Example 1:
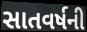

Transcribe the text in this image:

સાતવર્ષની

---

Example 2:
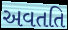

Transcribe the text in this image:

અવતતિ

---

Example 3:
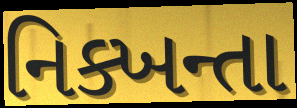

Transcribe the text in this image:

નિક્ખન્તા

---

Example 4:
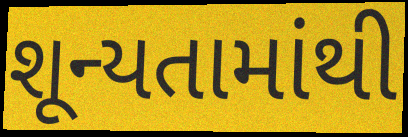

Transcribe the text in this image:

શૂન્યતામાંથી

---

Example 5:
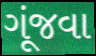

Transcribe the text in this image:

ગૂંજવા